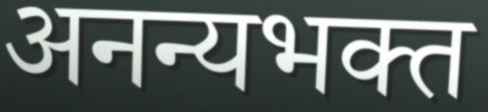
अनन्यभक्त